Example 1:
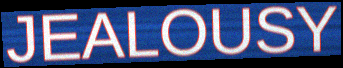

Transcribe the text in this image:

JEALOUSY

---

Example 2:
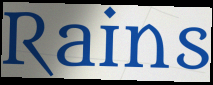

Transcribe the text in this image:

Rains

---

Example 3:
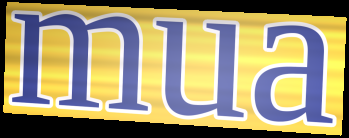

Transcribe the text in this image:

mua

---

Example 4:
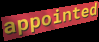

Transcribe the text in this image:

appointed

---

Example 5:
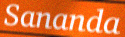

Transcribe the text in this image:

Sananda